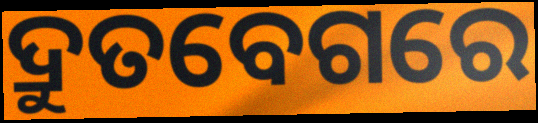
ଦ୍ରୁତବେଗରେ